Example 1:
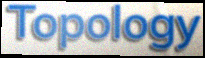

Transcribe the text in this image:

Topology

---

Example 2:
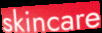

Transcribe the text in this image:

skincare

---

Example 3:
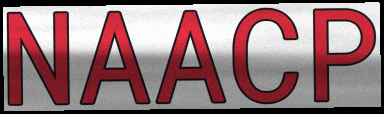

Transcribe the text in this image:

NAACP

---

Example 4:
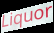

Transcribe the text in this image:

Liquor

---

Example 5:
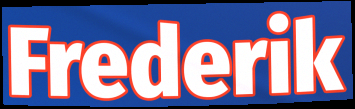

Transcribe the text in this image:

Frederik